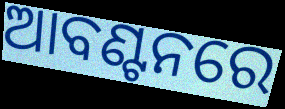
ଆବଣ୍ଟନରେ